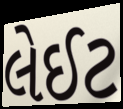
લેઈટ